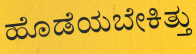
ಹೊಡೆಯಬೇಕಿತ್ತು